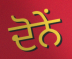
ਦੋਨੇਂ